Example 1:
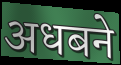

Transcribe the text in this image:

अधबने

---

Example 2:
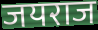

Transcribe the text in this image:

जयराज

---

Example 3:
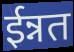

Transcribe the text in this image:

ईन्नत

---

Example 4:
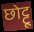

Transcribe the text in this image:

छोट्टू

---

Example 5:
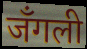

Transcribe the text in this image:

जँगली